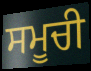
ਸਮੂਚੀ